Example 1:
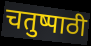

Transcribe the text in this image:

चतुष्पाठी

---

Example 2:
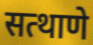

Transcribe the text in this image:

सत्थाणे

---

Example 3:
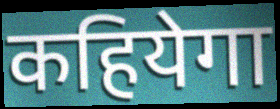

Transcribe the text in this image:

कहियेगा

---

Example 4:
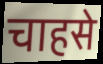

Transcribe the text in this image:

चाहसे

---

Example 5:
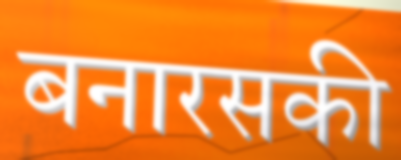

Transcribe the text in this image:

बनारसकी